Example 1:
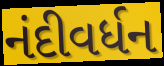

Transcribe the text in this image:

નંદીવર્ધન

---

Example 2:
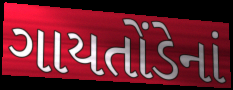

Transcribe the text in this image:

ગાયતોંડેનાં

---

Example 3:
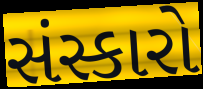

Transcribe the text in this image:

સંસ્કારો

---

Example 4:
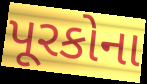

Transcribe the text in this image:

પૂરકોના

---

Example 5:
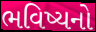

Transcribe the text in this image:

ભવિષ્યનો